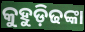
କୁହୁଡ଼ିଢଙ୍କା